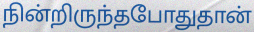
நின்றிருந்தபோதுதான்